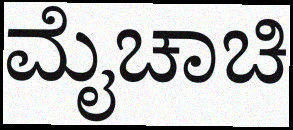
ಮೈಚಾಚಿ